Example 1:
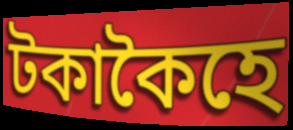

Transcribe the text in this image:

টকাকৈহে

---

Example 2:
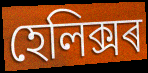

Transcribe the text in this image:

হেলিক্সৰ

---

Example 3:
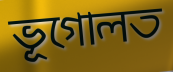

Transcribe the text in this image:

ভূগোলত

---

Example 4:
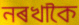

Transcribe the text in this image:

নৰখাকৈ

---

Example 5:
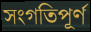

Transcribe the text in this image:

সংগতিপূৰ্ণ